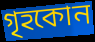
গৃহকোন